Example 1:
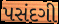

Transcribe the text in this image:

પસંદગી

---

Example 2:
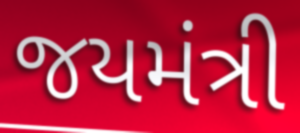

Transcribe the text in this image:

જયમંત્રી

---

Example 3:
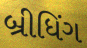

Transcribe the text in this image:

બ્રીધિંગ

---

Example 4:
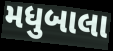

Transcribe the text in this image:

મધુબાલા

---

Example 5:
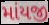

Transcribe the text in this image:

માંયજી